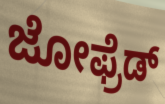
ಜೋಫ್ರೆಡ್